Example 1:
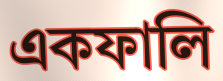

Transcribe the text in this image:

একফালি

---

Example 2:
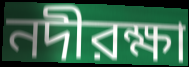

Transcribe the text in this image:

নদীরক্ষা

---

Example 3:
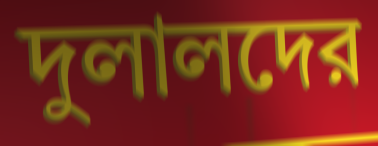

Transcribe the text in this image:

দুলালদের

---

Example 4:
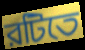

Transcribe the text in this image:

রটিতে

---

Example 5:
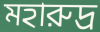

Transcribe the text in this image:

মহারুদ্র